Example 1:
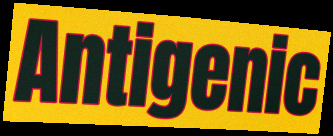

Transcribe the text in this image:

Antigenic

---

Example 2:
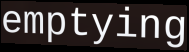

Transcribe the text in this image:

emptying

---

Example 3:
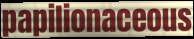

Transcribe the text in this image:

papilionaceous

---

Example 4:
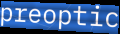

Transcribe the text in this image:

preoptic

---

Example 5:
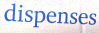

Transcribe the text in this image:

dispenses